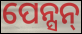
ପେନ୍ସନ୍